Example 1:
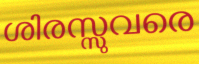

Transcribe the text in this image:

ശിരസ്സുവരെ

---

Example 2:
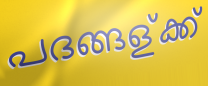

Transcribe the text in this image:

പദങ്ങള്ക്ക്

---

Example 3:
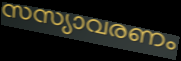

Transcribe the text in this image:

സസ്യാവരണം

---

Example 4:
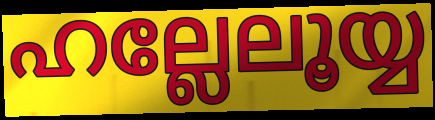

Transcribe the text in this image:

ഹല്ലേലൂയ്യ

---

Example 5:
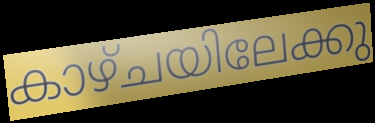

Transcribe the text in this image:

കാഴ്ചയിലേക്കു